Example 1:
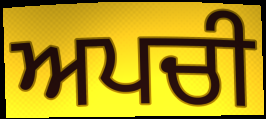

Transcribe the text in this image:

ਅਪਚੀ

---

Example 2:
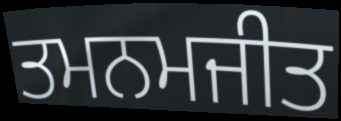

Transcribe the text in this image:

ਤਮਨਮਜੀਤ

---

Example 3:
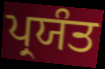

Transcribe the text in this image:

ਪ੍ਰਯੰਤ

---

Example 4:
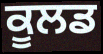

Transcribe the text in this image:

ਕੂਲਡ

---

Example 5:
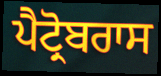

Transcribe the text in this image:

ਪੈਟ੍ਰੋਬਰਾਸ